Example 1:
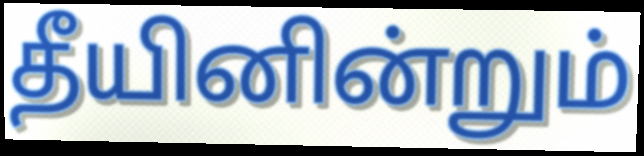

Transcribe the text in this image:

தீயினின்றும்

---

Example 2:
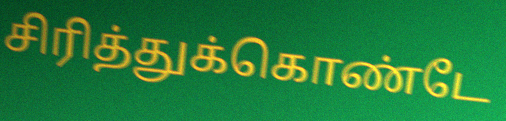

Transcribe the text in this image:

சிரித்துக்கொண்டே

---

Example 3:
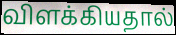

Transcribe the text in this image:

விளக்கியதால்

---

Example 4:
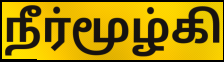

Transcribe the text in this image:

நீர்மூழ்கி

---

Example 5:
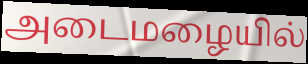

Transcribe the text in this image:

அடைமழையில்